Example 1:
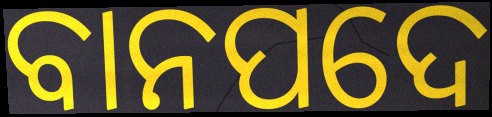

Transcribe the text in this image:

ବାନପଦେ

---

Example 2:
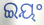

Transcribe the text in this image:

ଇୟଂ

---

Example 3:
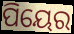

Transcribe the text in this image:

ପିୟେର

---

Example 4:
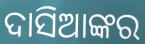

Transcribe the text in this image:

ଦାସିଆଙ୍କର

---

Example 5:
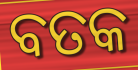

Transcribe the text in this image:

ବତକ